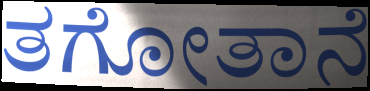
ತಗೋತಾನೆ